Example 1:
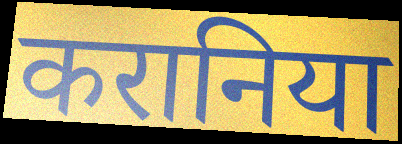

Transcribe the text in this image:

करानिया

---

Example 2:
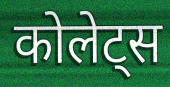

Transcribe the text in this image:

कोलेट्स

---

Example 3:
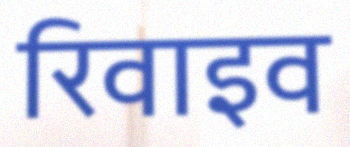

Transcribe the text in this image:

रिवाइव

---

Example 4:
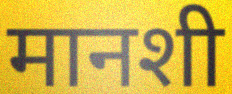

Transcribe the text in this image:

मानशी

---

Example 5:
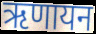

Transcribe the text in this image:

ऋणायन